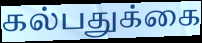
கல்பதுக்கை